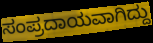
ಸಂಪ್ರದಾಯವಾಗಿದ್ದು